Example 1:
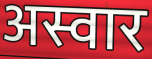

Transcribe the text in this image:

अस्वार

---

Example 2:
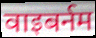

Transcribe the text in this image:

वाइबर्नम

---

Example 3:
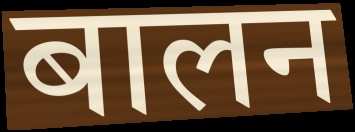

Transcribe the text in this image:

बालन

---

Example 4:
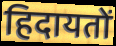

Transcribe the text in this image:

हिदायतों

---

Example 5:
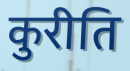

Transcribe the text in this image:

कुरीति